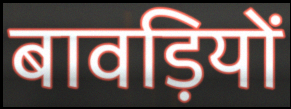
बावड़ियों